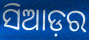
ସିଆଡ଼ର